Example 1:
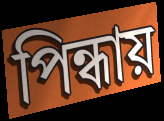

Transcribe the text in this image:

পিন্ধায়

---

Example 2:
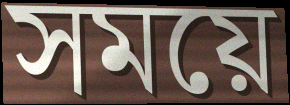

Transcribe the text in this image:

সময়ে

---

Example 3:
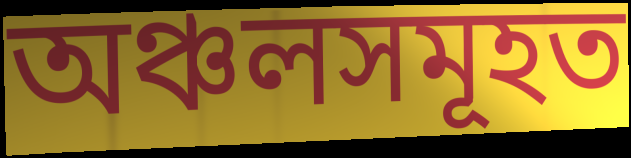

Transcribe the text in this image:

অঞ্চলসমূহত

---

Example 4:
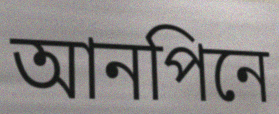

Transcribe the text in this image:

আনপিনে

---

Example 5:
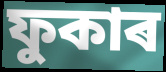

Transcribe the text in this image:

ফুকাৰ